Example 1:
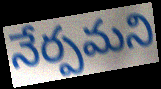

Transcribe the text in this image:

నేర్పమని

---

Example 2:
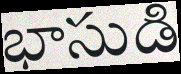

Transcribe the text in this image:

భాసుడి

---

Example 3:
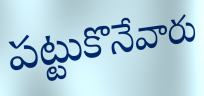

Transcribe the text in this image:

పట్టుకొనేవారు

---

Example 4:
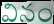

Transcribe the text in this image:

వినం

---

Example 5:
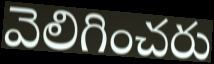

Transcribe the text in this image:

వెలిగించరు